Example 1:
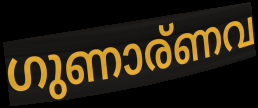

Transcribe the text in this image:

ഗുണാര്ണവ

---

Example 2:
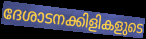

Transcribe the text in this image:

ദേശാടനക്കിളികളുടെ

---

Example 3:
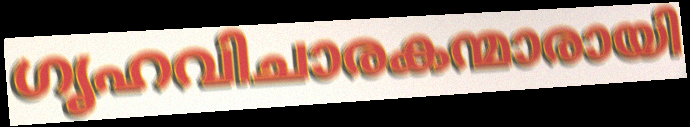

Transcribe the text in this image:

ഗൃഹവിചാരകന്മാരായി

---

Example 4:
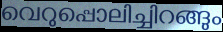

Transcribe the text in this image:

വെറുപ്പൊലിച്ചിറങ്ങും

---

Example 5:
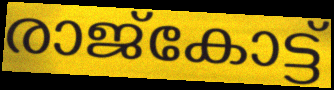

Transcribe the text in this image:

രാജ്കോട്ട്